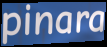
pinara